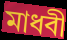
মাধবী